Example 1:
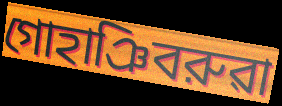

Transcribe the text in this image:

গোহাঞিবৰুৱা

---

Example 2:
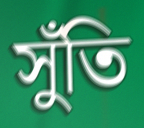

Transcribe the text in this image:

সুঁতি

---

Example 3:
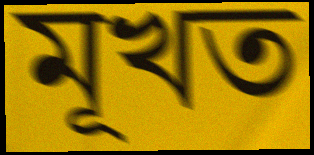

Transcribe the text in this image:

মূখত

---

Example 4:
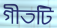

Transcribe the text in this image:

গীতটি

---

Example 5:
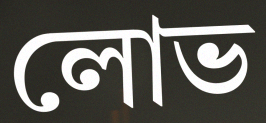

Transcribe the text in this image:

লোভ